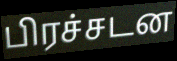
பிரச்சடன